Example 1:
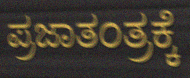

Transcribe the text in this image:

ಪ್ರಜಾತಂತ್ರಕ್ಕೆ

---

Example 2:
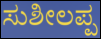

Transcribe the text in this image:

ಸುಶೀಲಪ್ಪ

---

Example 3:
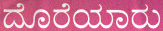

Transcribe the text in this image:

ದೊರೆಯಾರು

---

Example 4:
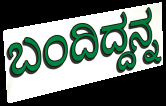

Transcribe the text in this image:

ಬಂದಿದ್ದನ್ನ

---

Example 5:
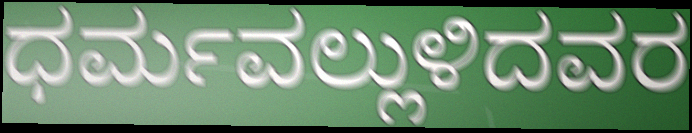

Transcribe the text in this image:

ಧರ್ಮವಲ್ಲುಳಿದವರ